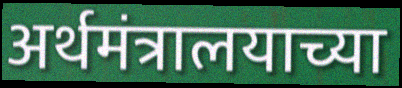
अर्थमंत्रालयाच्या